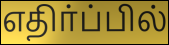
எதிர்ப்பில்